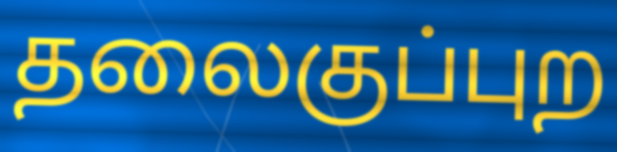
தலைகுப்புற